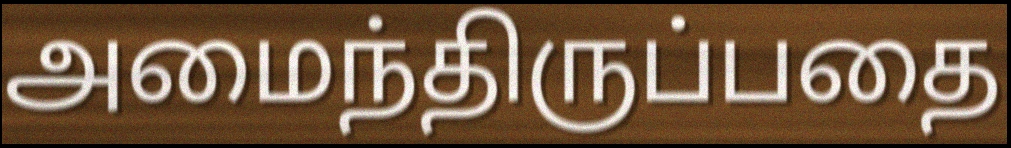
அமைந்திருப்பதை